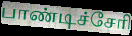
பாண்டிச்சேரி